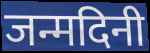
जन्मदिनी